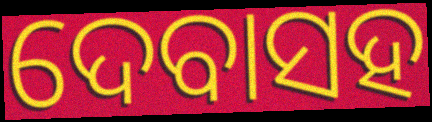
ଦେବାସହ